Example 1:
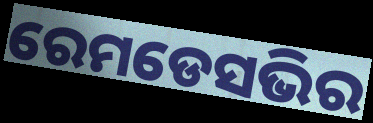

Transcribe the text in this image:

ରେମଡେସଭିର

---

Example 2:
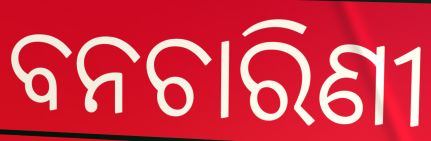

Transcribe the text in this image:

ବନଚାରିଣୀ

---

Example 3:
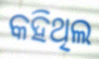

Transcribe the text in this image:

କହିଥିଲ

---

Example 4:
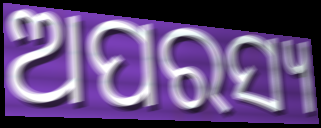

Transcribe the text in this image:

ଅପରସ୍ୟ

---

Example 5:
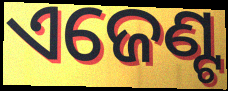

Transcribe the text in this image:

ଏଜେଣ୍ଟ